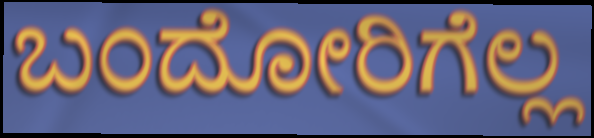
ಬಂದೋರಿಗೆಲ್ಲ